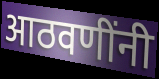
आठवणींनी